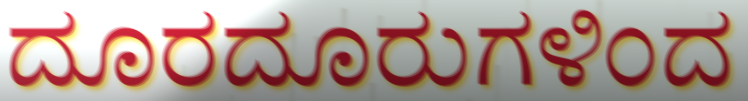
ದೂರದೂರುಗಳಿಂದ